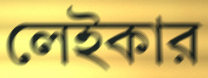
লেইকার